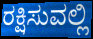
ರಕ್ಷಿಸುವಲ್ಲಿ